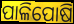
ପାଳିପୋଷି